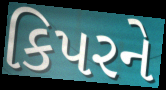
કિપરને